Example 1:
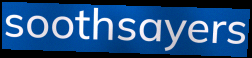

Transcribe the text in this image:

soothsayers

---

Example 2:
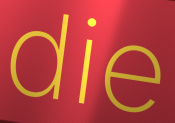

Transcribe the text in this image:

die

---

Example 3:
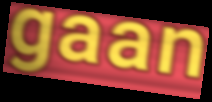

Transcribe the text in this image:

gaan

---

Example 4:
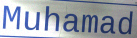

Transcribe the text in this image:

Muhamad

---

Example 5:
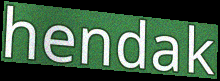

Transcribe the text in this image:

hendak